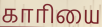
காரியை